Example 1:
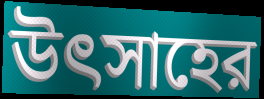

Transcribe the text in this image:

উৎসাহের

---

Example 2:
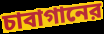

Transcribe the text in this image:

চাবাগানের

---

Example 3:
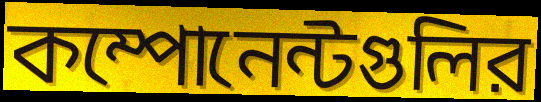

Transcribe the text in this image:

কম্পোনেন্টগুলির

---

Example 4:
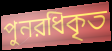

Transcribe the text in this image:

পুনরধিকৃত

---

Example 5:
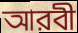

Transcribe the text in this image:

আরবী